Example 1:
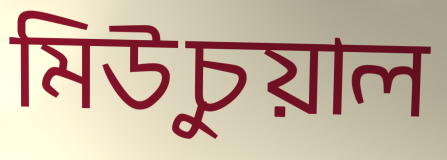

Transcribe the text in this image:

মিউচুয়াল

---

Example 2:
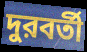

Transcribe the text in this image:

দুরবর্তী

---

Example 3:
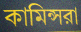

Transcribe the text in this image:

কামিন্সরা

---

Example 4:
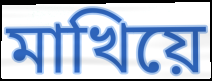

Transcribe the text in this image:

মাখিয়ে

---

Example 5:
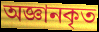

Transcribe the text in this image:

অজ্ঞানকৃত